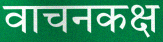
वाचनकक्ष